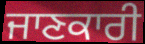
ਜਾਣਕਾਰੀ